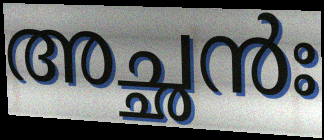
അച്ഛൻഃ